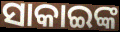
ସାକାଇଙ୍କ